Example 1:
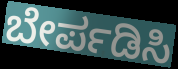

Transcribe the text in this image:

ಬೇರ್ಪಡಿಸಿ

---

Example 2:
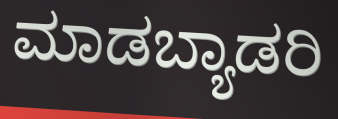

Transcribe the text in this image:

ಮಾಡಬ್ಯಾಡರಿ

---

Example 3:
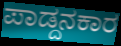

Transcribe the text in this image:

ಪಾಡ್ದನಕಾರ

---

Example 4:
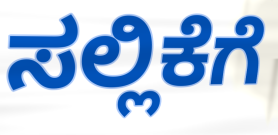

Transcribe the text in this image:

ಸಲ್ಲಿಕೆಗೆ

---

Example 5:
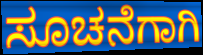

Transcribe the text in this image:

ಸೂಚನೆಗಾಗಿ